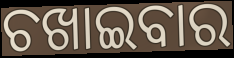
ଚଖାଇବାର